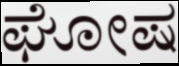
ಘೋಷ